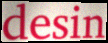
desin